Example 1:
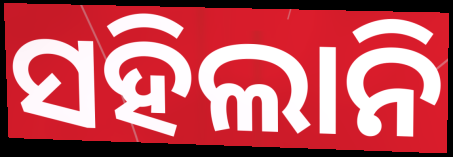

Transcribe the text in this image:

ସହିଲାନି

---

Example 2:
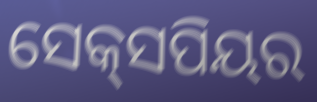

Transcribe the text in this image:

ସେକ୍‌ସପିୟର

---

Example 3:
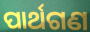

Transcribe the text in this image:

ପାର୍ଥଗଣ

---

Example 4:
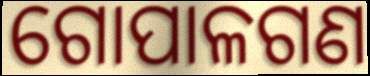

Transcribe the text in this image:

ଗୋପାଳଗଣ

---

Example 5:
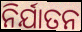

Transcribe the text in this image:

ନିର୍ଯାତନ